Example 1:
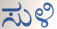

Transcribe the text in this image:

ಸುಳಿ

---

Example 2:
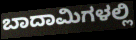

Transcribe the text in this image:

ಬಾದಾಮಿಗಳಲ್ಲಿ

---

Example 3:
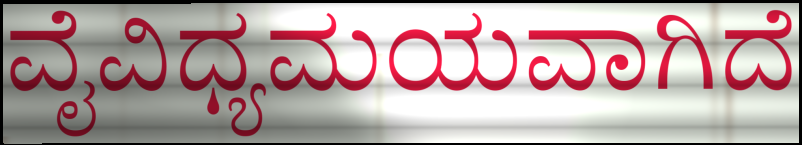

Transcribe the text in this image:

ವೈವಿಧ್ಯಮಯವಾಗಿದೆ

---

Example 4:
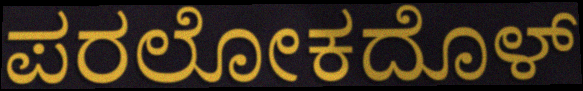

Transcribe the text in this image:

ಪರಲೋಕದೊಳ್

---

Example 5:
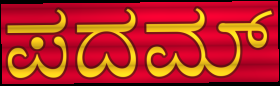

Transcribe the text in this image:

ಪದಮ್